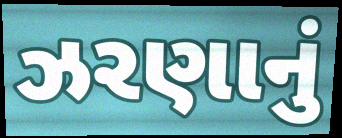
ઝરણાનું